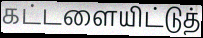
கட்டளையிட்டுத்